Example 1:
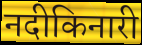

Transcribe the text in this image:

नदीकिनारी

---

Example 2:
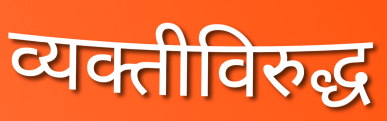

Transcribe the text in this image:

व्यक्तीविरुद्ध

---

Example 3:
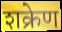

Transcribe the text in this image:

शक्रेण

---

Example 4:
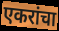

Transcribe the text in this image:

एकरांचा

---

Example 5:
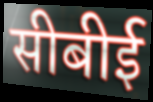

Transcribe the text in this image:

सीबीई